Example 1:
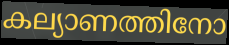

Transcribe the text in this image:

കല്യാണത്തിനോ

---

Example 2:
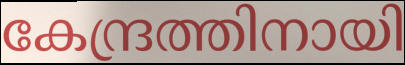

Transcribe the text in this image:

കേന്ദ്രത്തിനായി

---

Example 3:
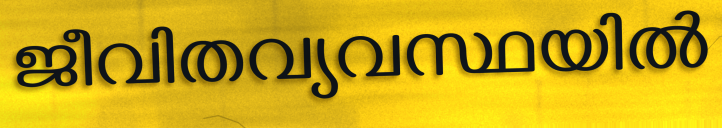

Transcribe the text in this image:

ജീവിതവ്യവസ്ഥയിൽ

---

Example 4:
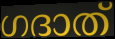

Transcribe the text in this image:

ഗദാത്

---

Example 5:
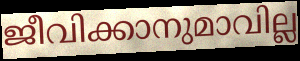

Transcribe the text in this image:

ജീവിക്കാനുമാവില്ല